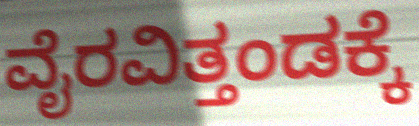
ವೈರವಿತ್ತಂಡಕ್ಕೆ